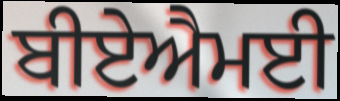
ਬੀਏਐਮਈ